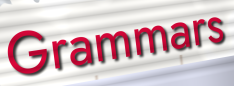
Grammars